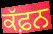
ਕੱਫ਼ਨ